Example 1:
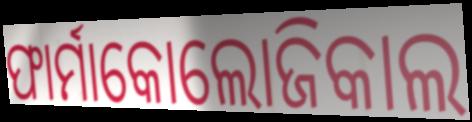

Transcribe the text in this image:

ଫାର୍ମାକୋଲୋଜିକାଲ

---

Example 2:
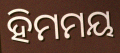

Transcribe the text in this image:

ହିମମୟ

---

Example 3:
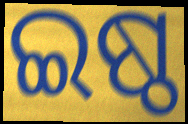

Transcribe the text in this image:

ଇଷ୍ଠ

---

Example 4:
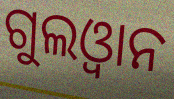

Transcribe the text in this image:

ଗୁଲଓ୍ୱାନ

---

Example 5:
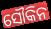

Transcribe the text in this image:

ସୌକିନ